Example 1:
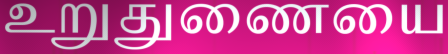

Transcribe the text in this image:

உறுதுணையை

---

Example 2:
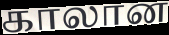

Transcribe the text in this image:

காலான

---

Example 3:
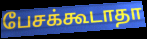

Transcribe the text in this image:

பேசக்கூடாதா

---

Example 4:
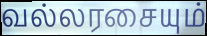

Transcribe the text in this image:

வல்லரசையும்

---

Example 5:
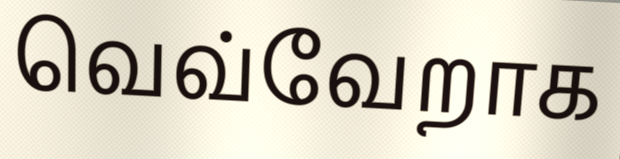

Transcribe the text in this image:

வெவ்வேறாக